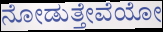
ನೋಡುತ್ತೇವೆಯೋ